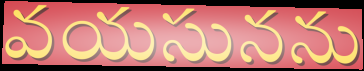
వయసునను